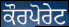
ਕੌਰਪੋਰੇਟ